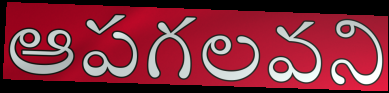
ఆపగలవని